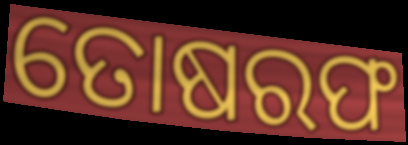
ତୋଷରଫ